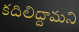
కదిలిద్దామని